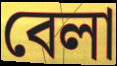
বেলা